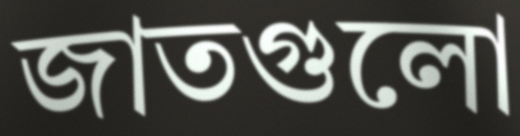
জাতগুলো